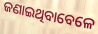
ଜଣାଇଥିବାବେଳେ